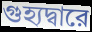
গুহ্যদ্বারে